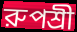
রুপশ্রী